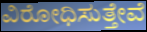
ವಿರೋಧಿಸುತ್ತೇವೆ